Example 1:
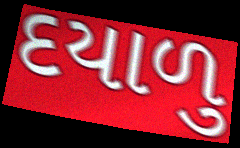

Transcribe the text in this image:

દયાળુ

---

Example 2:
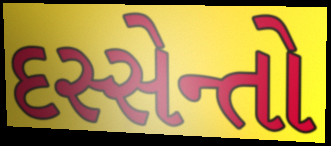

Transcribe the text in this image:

દસ્સેન્તો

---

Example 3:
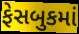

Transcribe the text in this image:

ફેસબુકમાં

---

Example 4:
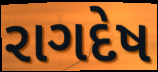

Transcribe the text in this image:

રાગદેષ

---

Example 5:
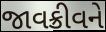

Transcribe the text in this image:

જાવક્રીવને